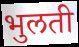
भुलती